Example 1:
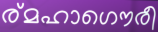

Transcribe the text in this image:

ര്മഹാഗൌരീ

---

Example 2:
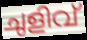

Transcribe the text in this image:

ചുളിവ്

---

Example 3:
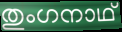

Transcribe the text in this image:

തുംഗനാഥ്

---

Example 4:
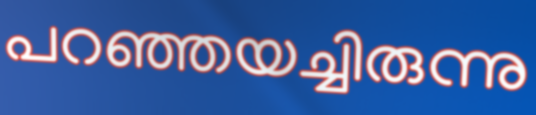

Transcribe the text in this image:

പറഞ്ഞയച്ചിരുന്നു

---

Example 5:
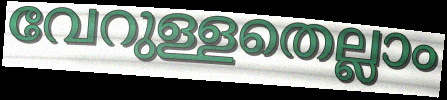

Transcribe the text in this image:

വേറുള്ളതെല്ലാം